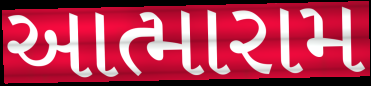
આત્મારામ